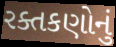
રક્તકણોનું